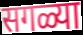
सगळ्या